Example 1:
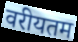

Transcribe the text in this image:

वरीयतम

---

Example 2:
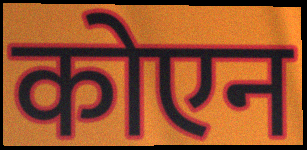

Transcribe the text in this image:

कोएन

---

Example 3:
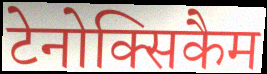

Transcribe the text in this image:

टेनोक्सिकैम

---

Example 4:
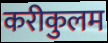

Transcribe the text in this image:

करीकुलम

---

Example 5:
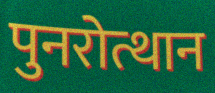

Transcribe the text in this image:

पुनरोत्थान